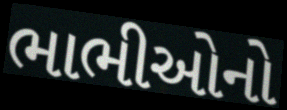
ભાભીઓનો